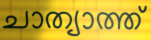
ചാത്യാത്ത്